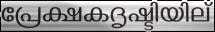
പ്രേക്ഷകദൃഷ്ടിയില്